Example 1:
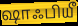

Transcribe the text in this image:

ஷாஃபியீ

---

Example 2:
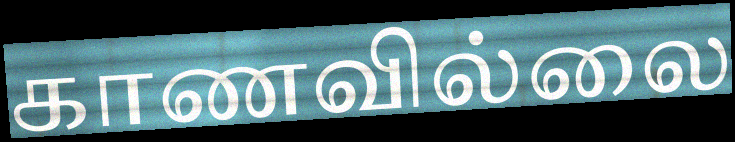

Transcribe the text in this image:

காணவில்லை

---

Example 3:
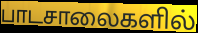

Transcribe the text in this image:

பாடசாலைகளில்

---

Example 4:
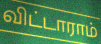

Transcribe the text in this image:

விட்டாராம்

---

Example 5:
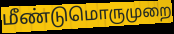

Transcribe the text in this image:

மீண்டுமொருமுறை